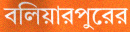
বলিয়ারপুরের